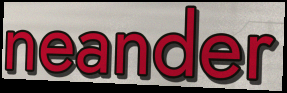
neander